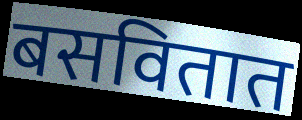
बसवितात